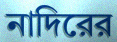
নাদিরের